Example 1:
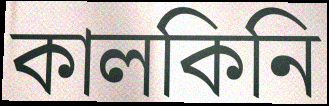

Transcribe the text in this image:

কালকিনি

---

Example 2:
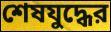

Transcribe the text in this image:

শেষযুদ্ধের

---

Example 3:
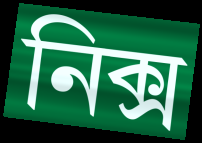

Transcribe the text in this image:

নিক্স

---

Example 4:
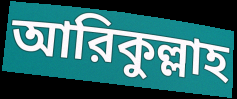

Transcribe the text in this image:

আরিকুল্লাহ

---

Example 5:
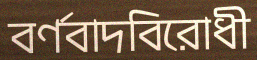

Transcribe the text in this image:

বর্ণবাদবিরোধী